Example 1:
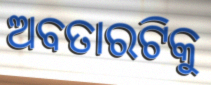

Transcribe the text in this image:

ଅବତାରଟିକୁ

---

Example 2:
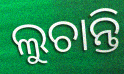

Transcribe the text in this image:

ଲୁଚାନ୍ତି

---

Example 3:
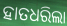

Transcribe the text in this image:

ହାତଧରିଲା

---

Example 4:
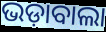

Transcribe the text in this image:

ଭଡ଼ାବାଲା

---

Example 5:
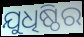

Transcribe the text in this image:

ଯୁଧିଷ୍ଠିର